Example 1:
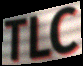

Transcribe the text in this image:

TLC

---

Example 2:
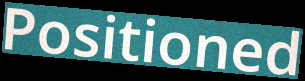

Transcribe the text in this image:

Positioned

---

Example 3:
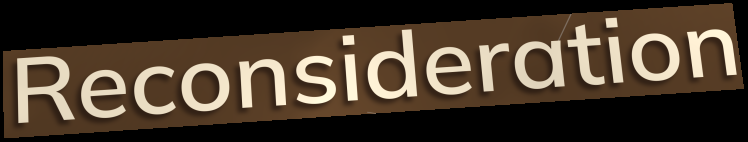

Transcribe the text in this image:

Reconsideration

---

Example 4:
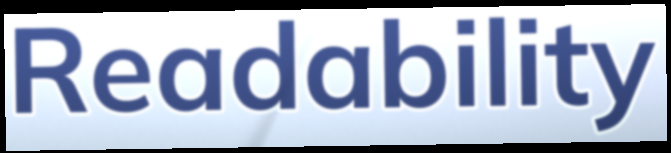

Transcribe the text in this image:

Readability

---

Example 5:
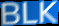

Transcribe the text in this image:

BLK